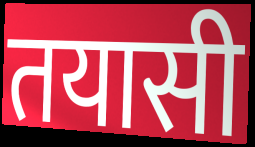
तयासी